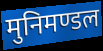
मुनिमण्डल